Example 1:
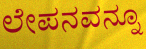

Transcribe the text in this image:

ಲೇಪನವನ್ನೂ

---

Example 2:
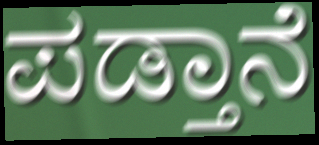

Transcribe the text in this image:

ಪಡ್ತಾನೆ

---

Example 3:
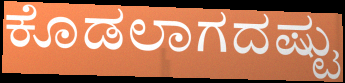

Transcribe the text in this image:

ಕೊಡಲಾಗದಷ್ಟು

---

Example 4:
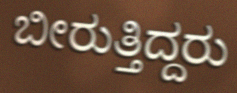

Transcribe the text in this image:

ಬೀರುತ್ತಿದ್ದರು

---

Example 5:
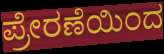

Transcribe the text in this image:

ಪ್ರೇರಣೆಯಿಂದ